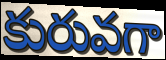
కురువగా